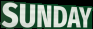
SUNDAY